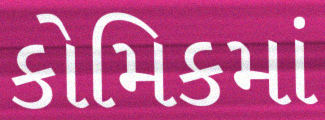
કોમિકમાં